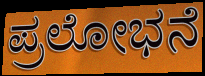
ಪ್ರಲೋಭನೆ